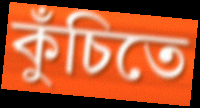
কুঁচিতে